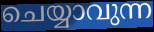
ചെയ്യാവുന്ന